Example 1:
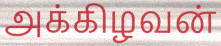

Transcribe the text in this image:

அக்கிழவன்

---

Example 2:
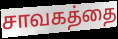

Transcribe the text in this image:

சாவகத்தை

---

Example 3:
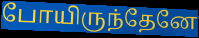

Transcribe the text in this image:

போயிருந்தேனே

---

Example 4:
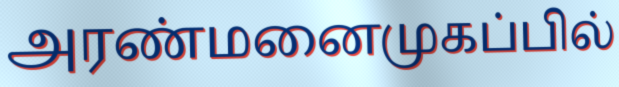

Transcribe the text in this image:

அரண்மனைமுகப்பில்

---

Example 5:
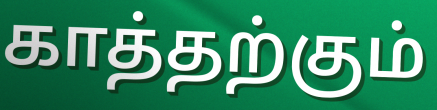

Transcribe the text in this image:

காத்தற்கும்